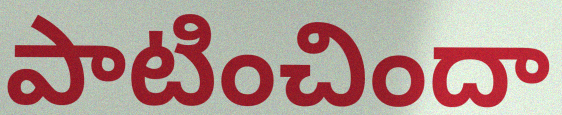
పాటించిందా